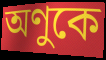
অণুকে